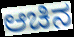
ಆಚಿನ